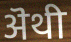
ऄथी